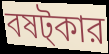
বষট্কার